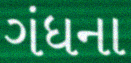
ગંધના